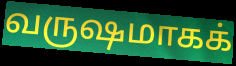
வருஷமாகக்